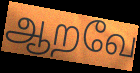
ஆறவே